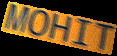
MOHIT